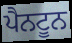
ਪੈਨਟੂਨ